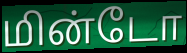
மின்டோ